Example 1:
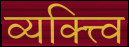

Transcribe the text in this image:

व्यक्त्त्वि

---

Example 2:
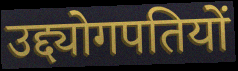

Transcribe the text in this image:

उद्द्योगपतियों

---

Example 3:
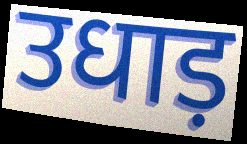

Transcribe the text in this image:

उधाड़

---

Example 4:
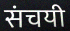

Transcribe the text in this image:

संचयी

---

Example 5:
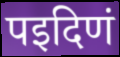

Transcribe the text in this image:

पइदिणं